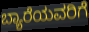
ಬ್ಯಾರೆಯವರಿಗೆ